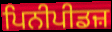
ਪਿਨੀਪੀਡਜ਼